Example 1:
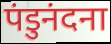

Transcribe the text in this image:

पंडुनंदना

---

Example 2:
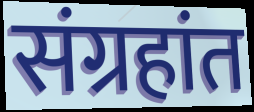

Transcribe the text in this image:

संग्रहांत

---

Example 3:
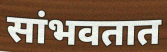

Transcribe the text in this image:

सांभवतात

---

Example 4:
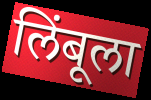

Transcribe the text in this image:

लिंबूला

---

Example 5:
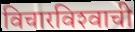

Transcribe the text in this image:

विचारविश्वाची